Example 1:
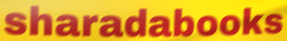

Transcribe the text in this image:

sharadabooks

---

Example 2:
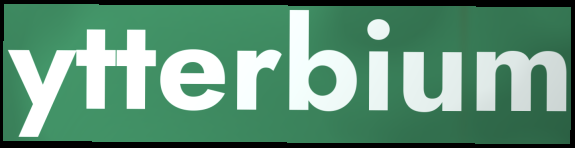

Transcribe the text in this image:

ytterbium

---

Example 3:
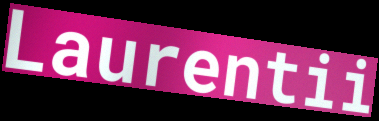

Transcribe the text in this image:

Laurentii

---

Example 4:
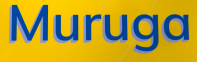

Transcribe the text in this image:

Muruga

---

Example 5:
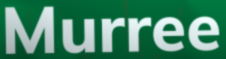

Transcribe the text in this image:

Murree